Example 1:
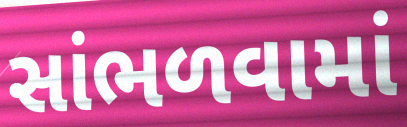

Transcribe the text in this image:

સાંભળવામાં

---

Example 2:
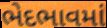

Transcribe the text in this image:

ભેદભાવમાં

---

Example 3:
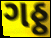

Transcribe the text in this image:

ગઠ્ઠ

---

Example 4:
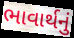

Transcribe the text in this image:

ભાવાર્થનું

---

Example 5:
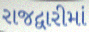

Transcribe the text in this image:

રાજદ્વારીમાં